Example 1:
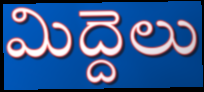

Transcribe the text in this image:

మిద్దెలు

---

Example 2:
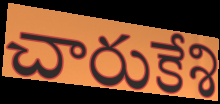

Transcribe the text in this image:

చారుకేశి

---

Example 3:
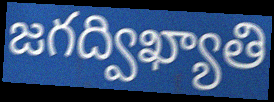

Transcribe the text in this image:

జగద్విఖ్యాతి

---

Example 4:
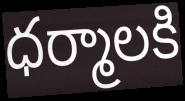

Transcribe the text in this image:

ధర్మాలకి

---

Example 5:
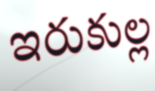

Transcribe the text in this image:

ఇరుకుల్ల